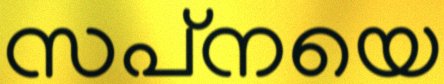
സപ്‌നയെ